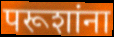
परूशांना